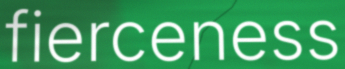
fierceness